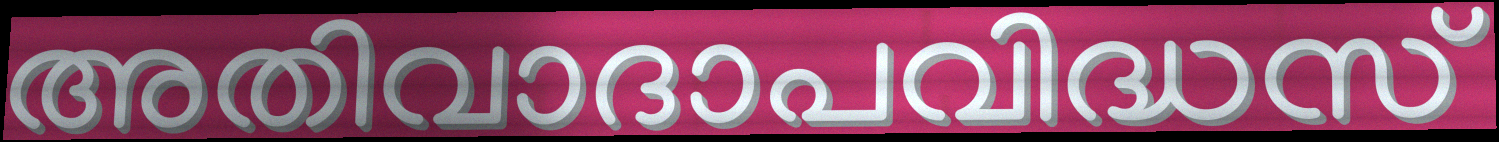
അതിവാദാപവിദ്ധസ്